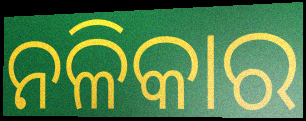
ନଳିକାର